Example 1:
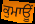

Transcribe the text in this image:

ਕੁਮਾਊਂ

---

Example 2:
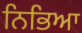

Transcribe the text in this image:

ਨਿਭਿਆ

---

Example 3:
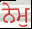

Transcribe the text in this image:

ਨੇਮੁ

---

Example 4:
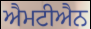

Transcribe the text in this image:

ਐਮਟੀਐਨ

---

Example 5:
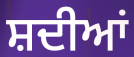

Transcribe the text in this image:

ਸ਼ਦੀਆਂ